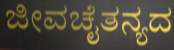
ಜೀವಚೈತನ್ಯದ